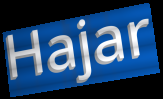
Hajar